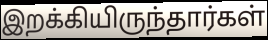
இறக்கியிருந்தார்கள்